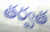
తర్వత